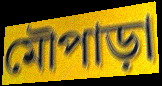
মৌপাড়া